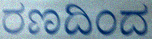
ರಣದಿಂದ